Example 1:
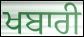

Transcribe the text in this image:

ਖਬਾਰੀ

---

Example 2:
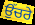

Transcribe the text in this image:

ਉੱਚਰੇ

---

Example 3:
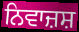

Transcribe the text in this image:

ਨਿਵਾਜ਼ਸ਼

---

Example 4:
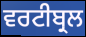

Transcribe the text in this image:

ਵਰਟੀਬ੍ਰਲ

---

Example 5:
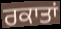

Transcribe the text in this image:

ਰਕਾਤਾਂ